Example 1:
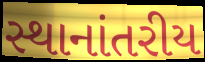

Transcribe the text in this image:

સ્થાનાંતરીય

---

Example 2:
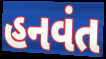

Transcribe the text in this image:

હનવંત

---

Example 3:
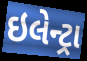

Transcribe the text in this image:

ઇલેન્ટ્રા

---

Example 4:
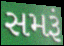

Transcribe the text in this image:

સમરૂં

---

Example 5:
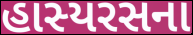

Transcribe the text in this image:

હાસ્યરસના